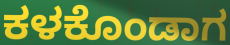
ಕಳಕೊಂಡಾಗ